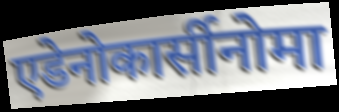
एडेनोकार्सीनोमा